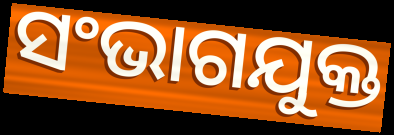
ସଂଭାଗଯୁକ୍ତ